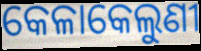
କେଳାକେଲୁଣୀ